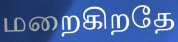
மறைகிறதே